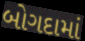
બોગદામાં